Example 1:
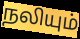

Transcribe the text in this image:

நலியும்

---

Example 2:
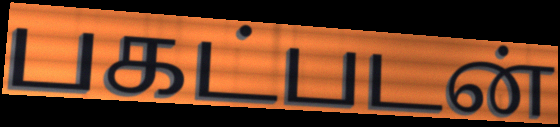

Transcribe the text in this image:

பகட்படன்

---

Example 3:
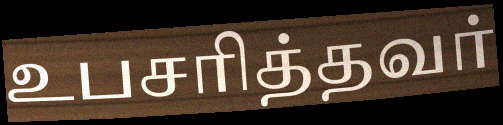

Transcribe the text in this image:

உபசரித்தவர்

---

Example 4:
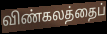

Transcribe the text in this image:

விண்கலத்தைப்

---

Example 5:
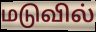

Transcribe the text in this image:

மடுவில்